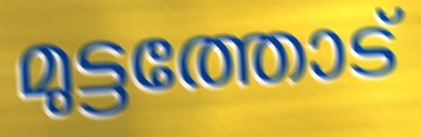
മുട്ടത്തോട്